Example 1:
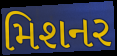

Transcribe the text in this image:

મિશનર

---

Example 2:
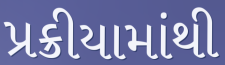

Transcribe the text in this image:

પ્રક્રીયામાંથી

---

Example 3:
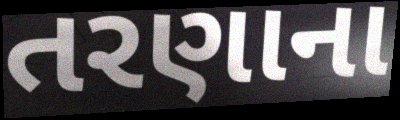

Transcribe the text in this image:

તરણાના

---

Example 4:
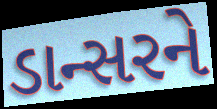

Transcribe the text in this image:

ડાન્સરને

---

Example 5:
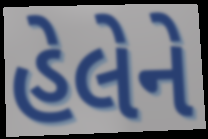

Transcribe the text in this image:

હેલેને